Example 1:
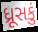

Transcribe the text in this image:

ધ્રૂસકું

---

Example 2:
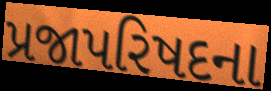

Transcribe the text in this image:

પ્રજાપરિષદના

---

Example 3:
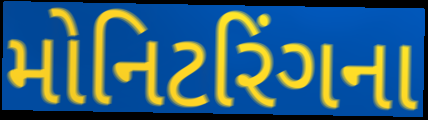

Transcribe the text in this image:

મોનિટરિંગના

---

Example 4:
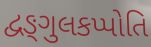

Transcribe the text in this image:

દ્વઙ્ગુલકપ્પોતિ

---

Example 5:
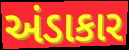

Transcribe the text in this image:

અંડાકાર